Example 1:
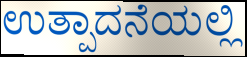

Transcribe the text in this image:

ಉತ್ಪಾದನೆಯಲ್ಲಿ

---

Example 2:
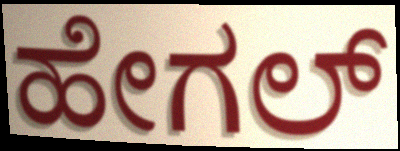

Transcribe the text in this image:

ಹೇಗಲ್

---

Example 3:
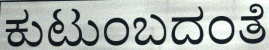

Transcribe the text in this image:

ಕುಟುಂಬದಂತೆ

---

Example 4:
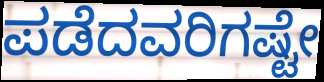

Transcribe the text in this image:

ಪಡೆದವರಿಗಷ್ಟೇ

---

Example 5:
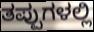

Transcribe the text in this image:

ತಪ್ಪುಗಳಲ್ಲಿ